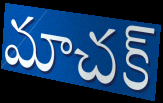
మాచక్